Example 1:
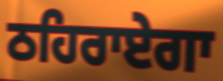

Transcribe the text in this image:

ਠਹਿਰਾਏਗਾ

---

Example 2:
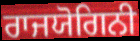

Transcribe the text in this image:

ਰਾਜਯੋਗਿਨੀ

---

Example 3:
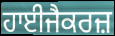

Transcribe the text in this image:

ਹਾਈਜੈਕਰਜ਼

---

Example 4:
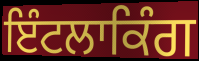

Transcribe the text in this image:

ਇੰਟਲਾਕਿੰਗ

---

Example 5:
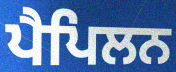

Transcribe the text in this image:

ਪੈਪਿਲਨ